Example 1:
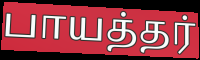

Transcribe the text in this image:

பாயத்தர்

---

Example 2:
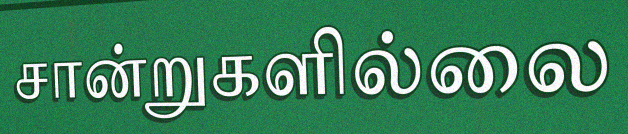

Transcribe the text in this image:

சான்றுகளில்லை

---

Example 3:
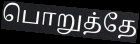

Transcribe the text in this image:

பொறுத்தே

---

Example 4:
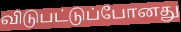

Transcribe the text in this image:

விடுபட்டுப்போனது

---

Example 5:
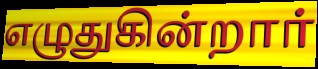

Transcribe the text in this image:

எழுதுகின்றார்